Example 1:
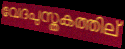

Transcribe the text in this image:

വേദപുസ്തകത്തില്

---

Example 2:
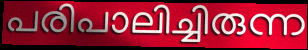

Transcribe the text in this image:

പരിപാലിച്ചിരുന്ന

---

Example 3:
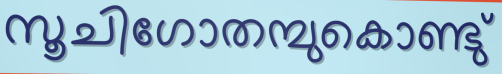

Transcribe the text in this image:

സൂചിഗോതമ്പുകൊണ്ടു്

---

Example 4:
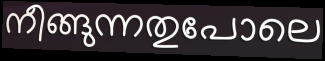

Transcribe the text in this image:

നീങ്ങുന്നതുപോലെ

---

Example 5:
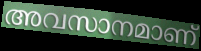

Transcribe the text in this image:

അവസാനമാണ്